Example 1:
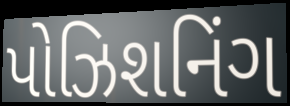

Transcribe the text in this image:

પોઝિશનિંગ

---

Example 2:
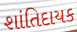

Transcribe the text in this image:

શાંતિદાયક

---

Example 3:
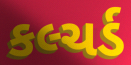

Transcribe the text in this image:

કલ્ચર્ડ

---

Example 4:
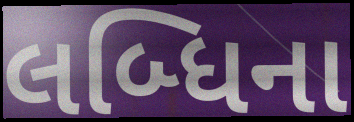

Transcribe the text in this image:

લબ્ધિના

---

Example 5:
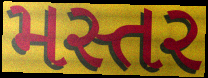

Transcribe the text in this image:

મસ્તર